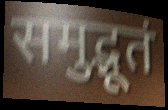
समुद्भूतं